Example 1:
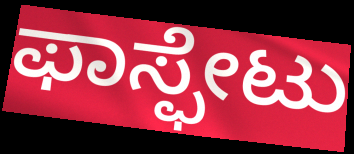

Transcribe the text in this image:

ಫಾಸ್ಫೇಟು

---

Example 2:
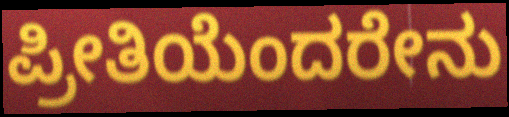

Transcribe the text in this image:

ಪ್ರೀತಿಯೆಂದರೇನು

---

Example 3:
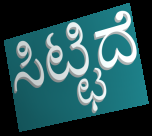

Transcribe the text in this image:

ಸಿಟ್ಟಿದೆ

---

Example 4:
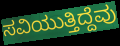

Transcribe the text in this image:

ಸವಿಯುತ್ತಿದ್ದೆವು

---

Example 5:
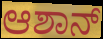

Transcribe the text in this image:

ಆಶಾನ್